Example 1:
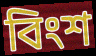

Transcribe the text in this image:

বিংশ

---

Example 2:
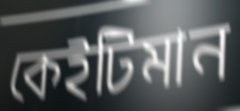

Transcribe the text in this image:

কেইটিমান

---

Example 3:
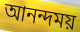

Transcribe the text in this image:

আনন্দময়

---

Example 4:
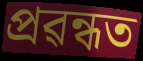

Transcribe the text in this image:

প্ৰৱন্ধত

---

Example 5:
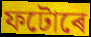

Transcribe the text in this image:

ফটোৰে